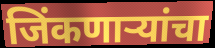
जिंकणाऱ्यांचा